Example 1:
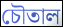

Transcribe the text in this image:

চৌতাল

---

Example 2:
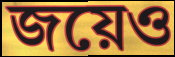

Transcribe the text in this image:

জয়েও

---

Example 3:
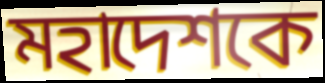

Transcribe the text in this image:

মহাদেশকে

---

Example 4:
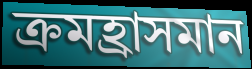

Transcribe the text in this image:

ক্রমহ্রাসমান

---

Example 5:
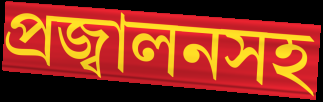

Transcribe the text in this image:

প্রজ্বালনসহ